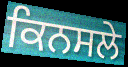
ਕਿਨਸਲੇ